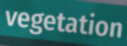
vegetation